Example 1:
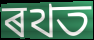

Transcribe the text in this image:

ৰথত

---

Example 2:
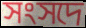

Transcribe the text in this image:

সংসদে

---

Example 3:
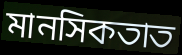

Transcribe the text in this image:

মানসিকতাত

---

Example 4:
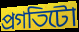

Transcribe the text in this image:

প্ৰগতিটো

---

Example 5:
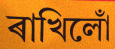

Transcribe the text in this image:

ৰাখিলোঁ